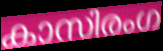
കാസിരംഗ